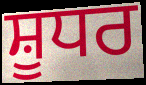
ਸ਼ੂਧਰ